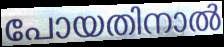
പോയതിനാൽ